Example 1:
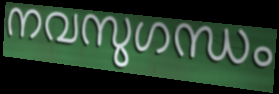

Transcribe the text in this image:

നവസുഗന്ധം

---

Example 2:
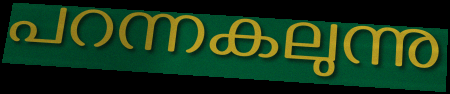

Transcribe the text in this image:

പറന്നകലുന്നു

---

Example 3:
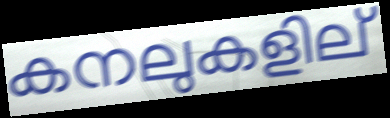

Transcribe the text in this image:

കനലുകളില്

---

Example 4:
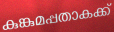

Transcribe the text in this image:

കുങ്കുമപ്പതാകക്ക്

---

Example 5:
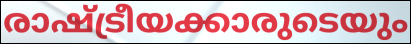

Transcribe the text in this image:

രാഷ്ട്രീയക്കാരുടെയും